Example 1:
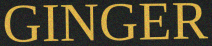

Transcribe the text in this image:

GINGER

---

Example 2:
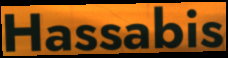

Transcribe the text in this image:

Hassabis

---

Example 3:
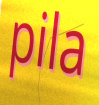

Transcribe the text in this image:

pila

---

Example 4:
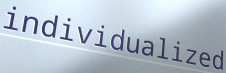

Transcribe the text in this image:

individualized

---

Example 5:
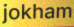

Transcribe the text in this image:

jokham